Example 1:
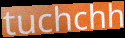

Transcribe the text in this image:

tuchchh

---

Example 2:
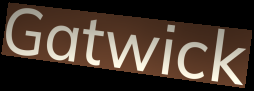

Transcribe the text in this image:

Gatwick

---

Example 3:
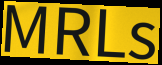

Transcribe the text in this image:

MRLs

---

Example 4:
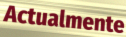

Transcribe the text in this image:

Actualmente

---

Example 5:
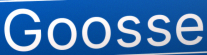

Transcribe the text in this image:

Goosse